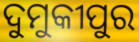
ଦୁମୁକୀପୁର